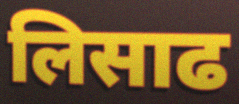
लिसाढ